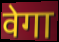
वेगा